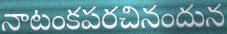
నాటంకపరచినందున